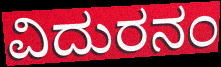
ವಿದುರನಂ